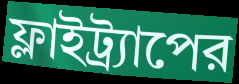
ফ্লাইট্র্যাপের